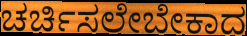
ಚರ್ಚಿಸಲೇಬೇಕಾದ